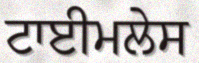
ਟਾਈਮਲੇਸ